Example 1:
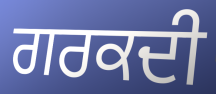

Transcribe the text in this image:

ਗਰਕਦੀ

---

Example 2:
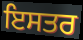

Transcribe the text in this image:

ਇਸਤਰ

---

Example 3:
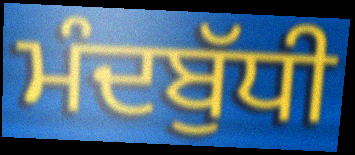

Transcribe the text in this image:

ਮੰਦਬੁੱਧੀ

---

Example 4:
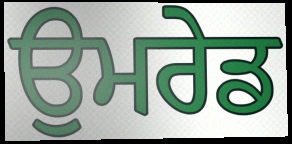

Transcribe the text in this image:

ਉਮਰੇਡ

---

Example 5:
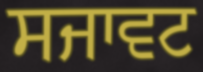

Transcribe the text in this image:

ਸਜਾਵਟ